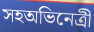
সহঅভিনেত্রী